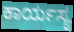
ಕಾರ್ಯಸ್ಯ